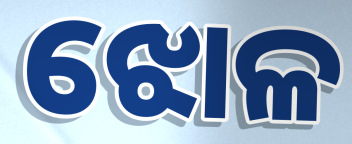
ଝୋଳ